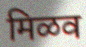
मिळव